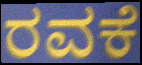
ರವಕೆ